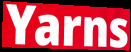
Yarns